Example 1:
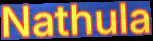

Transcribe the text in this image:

Nathula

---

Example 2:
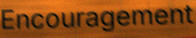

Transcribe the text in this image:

Encouragement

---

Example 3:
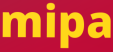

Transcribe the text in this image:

mipa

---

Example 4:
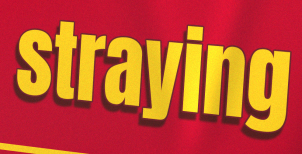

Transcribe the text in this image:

straying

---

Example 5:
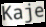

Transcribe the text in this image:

Kaje